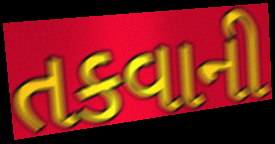
તકવાની